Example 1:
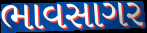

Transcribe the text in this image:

ભાવસાગર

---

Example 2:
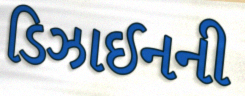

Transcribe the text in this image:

ડિઝાઈનની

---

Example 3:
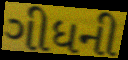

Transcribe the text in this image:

ગીધની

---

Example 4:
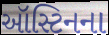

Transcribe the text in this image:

ઑસ્ટિનના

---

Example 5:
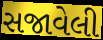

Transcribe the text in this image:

સજાવેલી